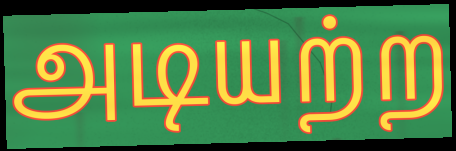
அடியற்ற